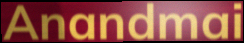
Anandmai